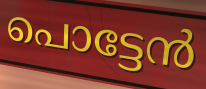
പൊട്ടേൻ